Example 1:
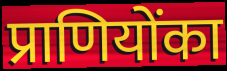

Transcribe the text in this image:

प्राणियोंका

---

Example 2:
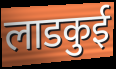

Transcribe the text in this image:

लाडकुई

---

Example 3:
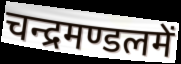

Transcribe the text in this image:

चन्द्रमण्डलमें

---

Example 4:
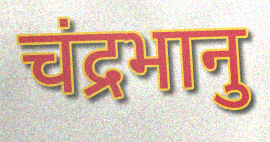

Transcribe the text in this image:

चंद्रभानु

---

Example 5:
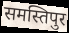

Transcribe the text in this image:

समस्तिपुर